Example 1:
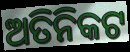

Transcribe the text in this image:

ଅତିନିକଟ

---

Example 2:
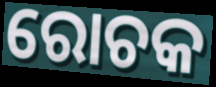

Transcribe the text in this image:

ରୋଚକ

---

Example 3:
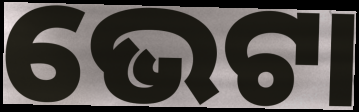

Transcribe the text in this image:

ଭେଟା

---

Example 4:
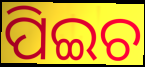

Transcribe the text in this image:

ପିଇଚ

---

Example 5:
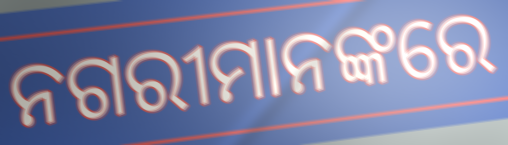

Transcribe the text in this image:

ନଗରୀମାନଙ୍କରେ